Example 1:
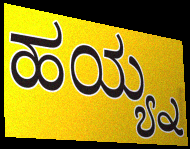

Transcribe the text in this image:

ಹಯ್ಯ್ನ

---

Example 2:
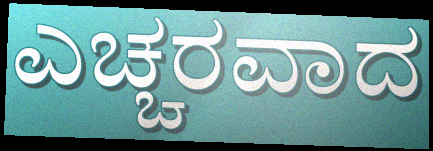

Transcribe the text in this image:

ಎಚ್ಚರವಾದ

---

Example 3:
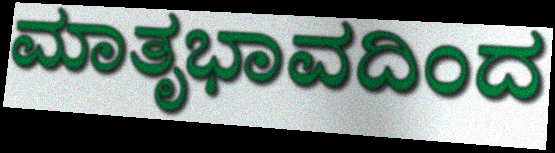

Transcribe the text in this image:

ಮಾತೃಭಾವದಿಂದ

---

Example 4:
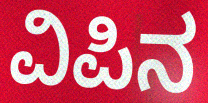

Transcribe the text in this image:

ವಿಪಿನ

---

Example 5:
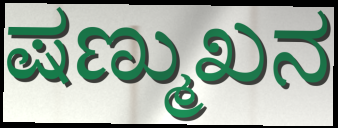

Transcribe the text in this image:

ಷಣ್ಮುಖನ